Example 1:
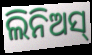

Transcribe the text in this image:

ଲିନିଅସ୍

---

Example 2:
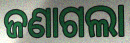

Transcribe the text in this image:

ଜଣାଗଲା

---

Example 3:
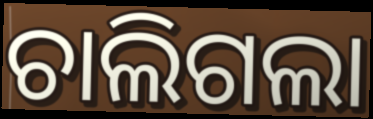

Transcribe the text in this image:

ଚାଲିଗଲା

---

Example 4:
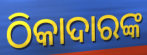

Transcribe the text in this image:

ଠିକାଦାରଙ୍କ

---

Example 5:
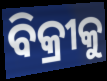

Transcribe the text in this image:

ବିକ୍ରୀକୁ